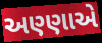
અણ્ણાએ